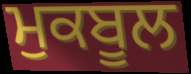
ਮੁਕਬੂਲ